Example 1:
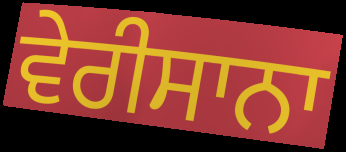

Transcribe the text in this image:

ਵੇਰੀਸਾਨਾ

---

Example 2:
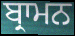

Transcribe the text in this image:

ਬ੍ਰਾਮਨ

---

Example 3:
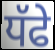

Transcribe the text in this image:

ਧੱਫੇ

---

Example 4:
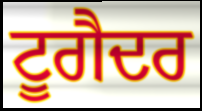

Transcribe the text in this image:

ਟੂਗੈਦਰ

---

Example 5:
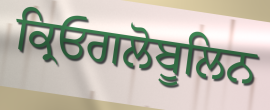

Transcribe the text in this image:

ਕ੍ਰਿਓਗਲੋਬੂਲਿਨ